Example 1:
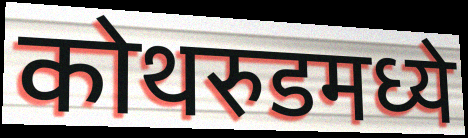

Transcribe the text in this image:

कोथरुडमध्ये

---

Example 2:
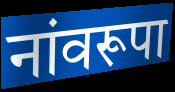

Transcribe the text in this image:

नांवरूपा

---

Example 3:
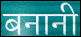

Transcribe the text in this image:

बनानी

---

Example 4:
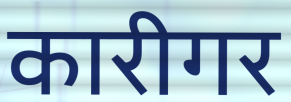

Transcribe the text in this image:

कारीगर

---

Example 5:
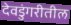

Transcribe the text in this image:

देवडुंगरीतील